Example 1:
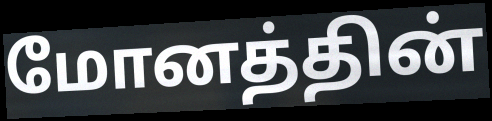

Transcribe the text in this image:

மோனத்தின்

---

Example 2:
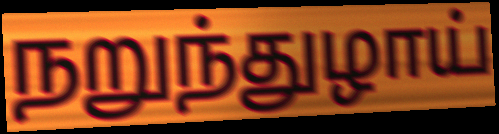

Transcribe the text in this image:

நறுந்துழாய்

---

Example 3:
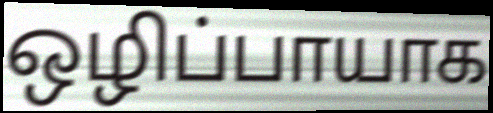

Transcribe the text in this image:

ஒழிப்பாயாக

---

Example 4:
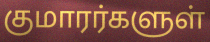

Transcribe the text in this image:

குமாரர்களுள்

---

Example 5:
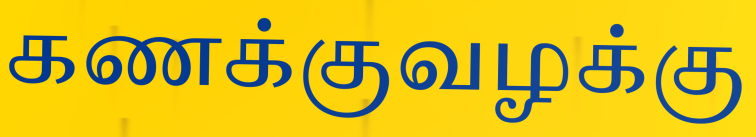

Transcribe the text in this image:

கணக்குவழக்கு